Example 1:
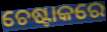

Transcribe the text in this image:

ଚେଷ୍ଟାକରେ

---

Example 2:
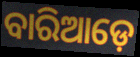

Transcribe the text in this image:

ବାରିଆଡ଼େ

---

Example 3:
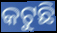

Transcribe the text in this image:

କଟୁଛି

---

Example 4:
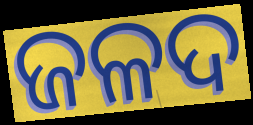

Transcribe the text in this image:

ଜଳଦ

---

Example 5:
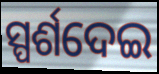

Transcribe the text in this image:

ସ୍ପର୍ଶଦେଇ